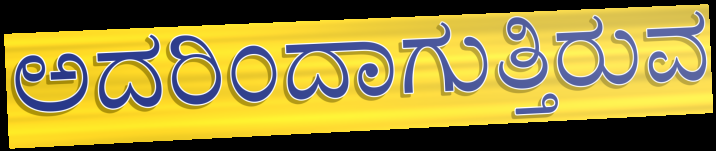
ಅದರಿಂದಾಗುತ್ತಿರುವ